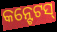
କନ୍ଟେଟସ୍